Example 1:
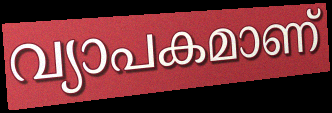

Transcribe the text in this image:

വ്യാപകമാണ്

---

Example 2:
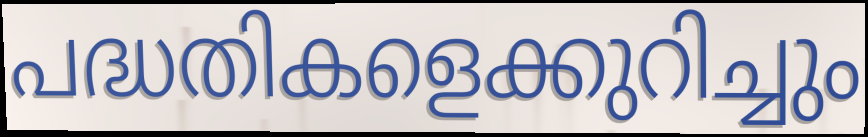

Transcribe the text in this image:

പദ്ധതികളെക്കുറിച്ചും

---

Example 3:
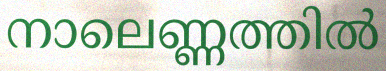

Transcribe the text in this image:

നാലെണ്ണത്തിൽ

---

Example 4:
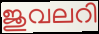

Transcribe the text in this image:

ജുവലറി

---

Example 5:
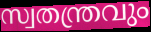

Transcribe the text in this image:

സ്വതന്ത്രവും